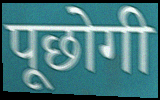
पूछोगी